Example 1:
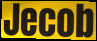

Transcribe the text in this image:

Jecob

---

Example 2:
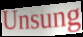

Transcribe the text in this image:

Unsung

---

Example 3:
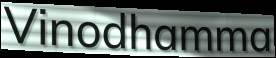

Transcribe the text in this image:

Vinodhamma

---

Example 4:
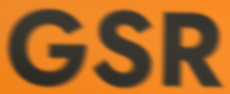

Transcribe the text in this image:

GSR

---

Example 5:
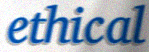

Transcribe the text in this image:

ethical